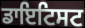
ਡਾਇਟਿਸਟ